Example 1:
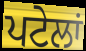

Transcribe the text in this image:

ਪਟੇਲਾਂ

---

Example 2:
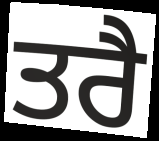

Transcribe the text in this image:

ਤਰੈ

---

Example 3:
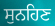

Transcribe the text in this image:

ਸੁਨਹਿਣ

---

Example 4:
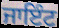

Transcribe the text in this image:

ਜਾਇੰਟ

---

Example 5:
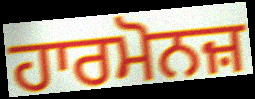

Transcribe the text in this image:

ਹਾਰਮੋਨਜ਼